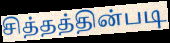
சித்தத்தின்படி